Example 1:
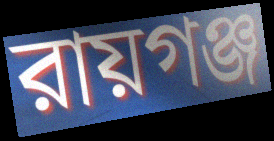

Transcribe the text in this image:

রায়গঞ্জ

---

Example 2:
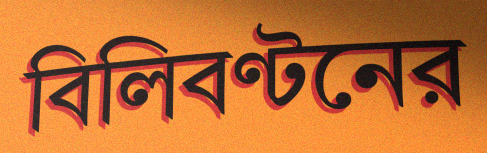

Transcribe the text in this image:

বিলিবণ্টনের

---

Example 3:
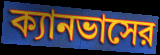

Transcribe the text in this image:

ক্যানভাসের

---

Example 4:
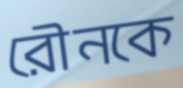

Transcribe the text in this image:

রৌনকে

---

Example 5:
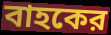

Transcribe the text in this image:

বাহকের